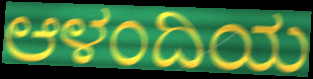
ಆಳಂದಿಯ